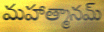
మహాత్మానమ్